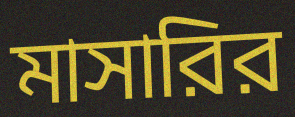
মাসারির